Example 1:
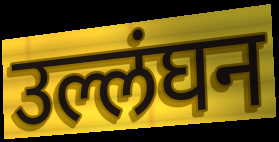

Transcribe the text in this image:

उल्लंघन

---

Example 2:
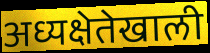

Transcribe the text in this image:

अध्यक्षेतेखाली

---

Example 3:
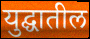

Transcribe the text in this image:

युद्घातील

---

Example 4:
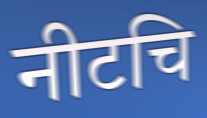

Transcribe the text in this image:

नीटचि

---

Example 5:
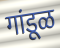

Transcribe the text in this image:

गांडूळ